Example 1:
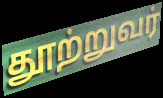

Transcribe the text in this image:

தூற்றுவர்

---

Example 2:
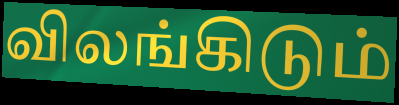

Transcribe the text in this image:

விலங்கிடும்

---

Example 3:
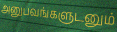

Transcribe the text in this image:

அனுபவங்களுடனும்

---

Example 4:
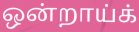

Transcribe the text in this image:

ஒன்றாய்க்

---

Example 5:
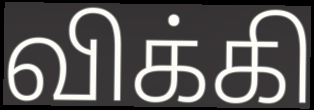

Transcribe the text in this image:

விக்கி